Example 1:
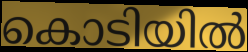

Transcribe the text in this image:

കൊടിയിൽ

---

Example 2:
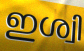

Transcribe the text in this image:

ഇശ്വി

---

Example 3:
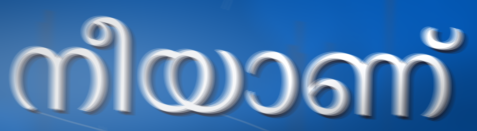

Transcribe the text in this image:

നീയാണ്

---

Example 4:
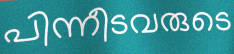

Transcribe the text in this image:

പിന്നീടവരുടെ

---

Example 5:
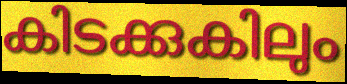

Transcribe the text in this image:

കിടക്കുകിലും